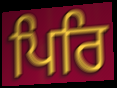
ਪਿਰਿ